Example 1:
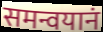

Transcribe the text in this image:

समन्वयानं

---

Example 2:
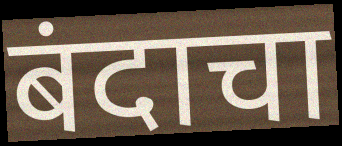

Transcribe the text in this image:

बंदाचा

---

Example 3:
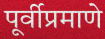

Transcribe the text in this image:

पूर्वीप्रमाणे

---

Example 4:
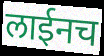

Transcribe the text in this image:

लाईनच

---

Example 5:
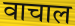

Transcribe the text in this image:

वाचाल